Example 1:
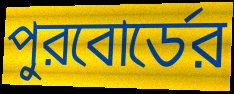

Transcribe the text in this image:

পুরবোর্ডের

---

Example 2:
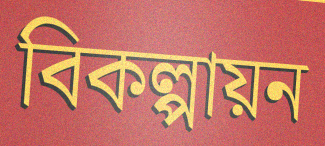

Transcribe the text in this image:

বিকল্পায়ন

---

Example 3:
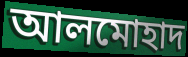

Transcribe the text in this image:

আলমোহাদ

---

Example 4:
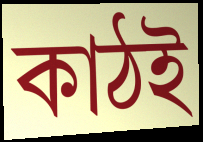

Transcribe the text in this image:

কাঠই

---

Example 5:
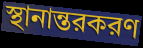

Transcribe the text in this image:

স্থানান্তরকরণ